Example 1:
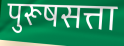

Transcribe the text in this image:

पुरूषसत्ता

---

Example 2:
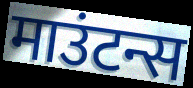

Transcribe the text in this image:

माउंटन्स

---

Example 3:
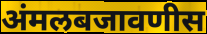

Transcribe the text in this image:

अंमलबजावणीस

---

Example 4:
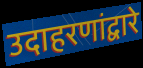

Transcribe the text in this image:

उदाहरणांद्वारे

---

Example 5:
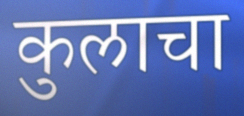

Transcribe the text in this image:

कुलाचा